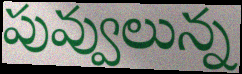
పువ్వులున్న